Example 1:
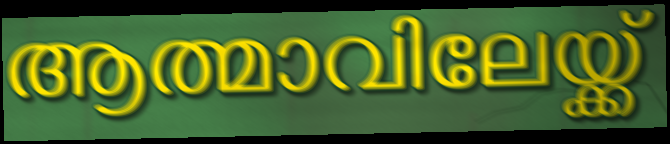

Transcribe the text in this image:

ആത്മാവിലേയ്ക്ക്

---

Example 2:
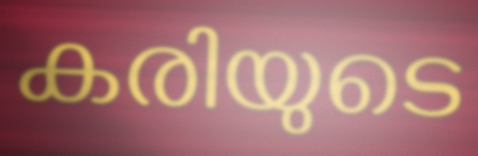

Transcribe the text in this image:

കരിയുടെ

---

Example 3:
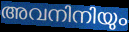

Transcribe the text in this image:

അവനിനിയും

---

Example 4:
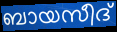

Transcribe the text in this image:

ബായസീദ്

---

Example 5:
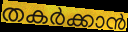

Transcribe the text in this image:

തകർക്കാൻ